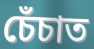
চেঁচাত